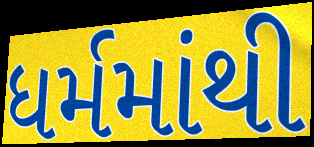
ધર્મમાંથી